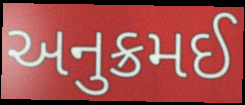
અનુક્રમઈ